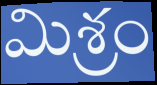
మిశ్రం